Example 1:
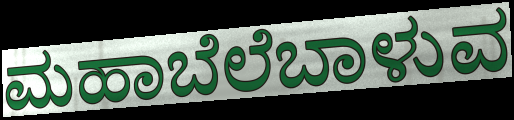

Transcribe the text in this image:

ಮಹಾಬೆಲೆಬಾಳುವ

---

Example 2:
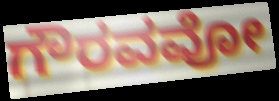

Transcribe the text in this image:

ಗೌರವವೋ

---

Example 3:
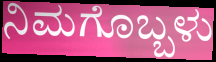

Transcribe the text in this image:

ನಿಮಗೊಬ್ಬಳು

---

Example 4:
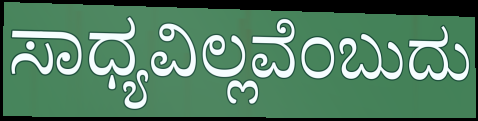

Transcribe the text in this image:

ಸಾಧ್ಯವಿಲ್ಲವೆಂಬುದು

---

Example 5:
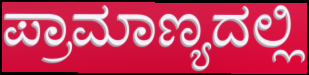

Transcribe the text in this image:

ಪ್ರಾಮಾಣ್ಯದಲ್ಲಿ